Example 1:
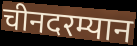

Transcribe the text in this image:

चीनदरम्यान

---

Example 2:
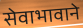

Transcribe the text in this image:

सेवाभावाने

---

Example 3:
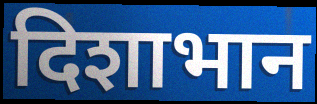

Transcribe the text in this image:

दिशाभान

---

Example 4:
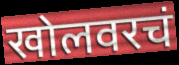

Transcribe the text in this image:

खोलवरचं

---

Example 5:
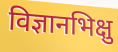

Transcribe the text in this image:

विज्ञानभिक्षु